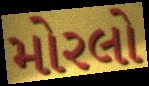
મોરલો